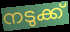
നടുക്ക്